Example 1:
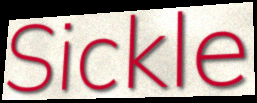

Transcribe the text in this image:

Sickle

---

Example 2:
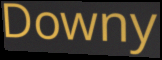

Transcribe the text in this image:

Downy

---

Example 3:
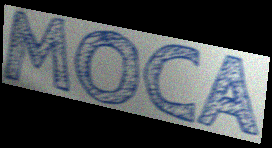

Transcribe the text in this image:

MOCA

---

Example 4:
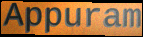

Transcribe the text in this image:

Appuram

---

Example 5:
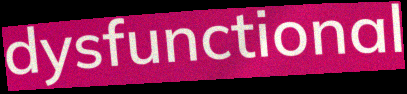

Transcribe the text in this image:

dysfunctional